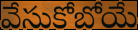
వేసుకోబోయే